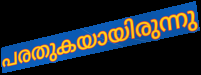
പരതുകയായിരുന്നു